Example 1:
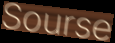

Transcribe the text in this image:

Sourse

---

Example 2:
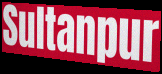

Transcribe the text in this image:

Sultanpur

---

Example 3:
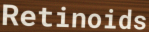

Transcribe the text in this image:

Retinoids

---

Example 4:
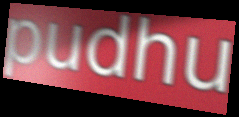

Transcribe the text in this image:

pudhu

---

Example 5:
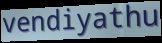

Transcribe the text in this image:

vendiyathu